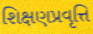
શિક્ષણપ્રવૃત્તિ